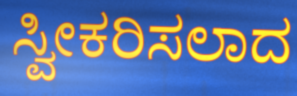
ಸ್ವೀಕರಿಸಲಾದ